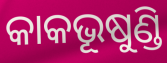
କାକଭୂଷୁଣ୍ଡି